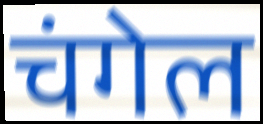
चंगेल